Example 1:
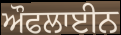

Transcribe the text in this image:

ਔਫਲਾਈਨ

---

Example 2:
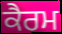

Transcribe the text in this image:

ਕੈਰਮ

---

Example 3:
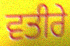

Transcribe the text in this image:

ਵਤੀਰੇ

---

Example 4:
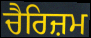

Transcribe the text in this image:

ਚੈਰਿਜ਼ਮ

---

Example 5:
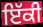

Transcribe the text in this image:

ਇੱਕੀ